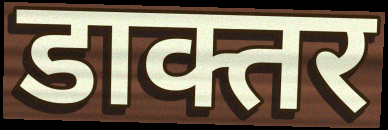
डाक्तर